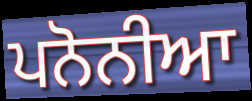
ਪਨੋਨੀਆ